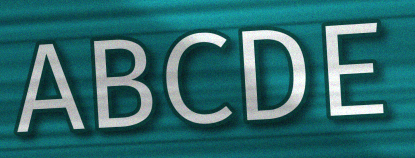
ABCDE